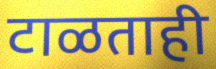
टाळताही